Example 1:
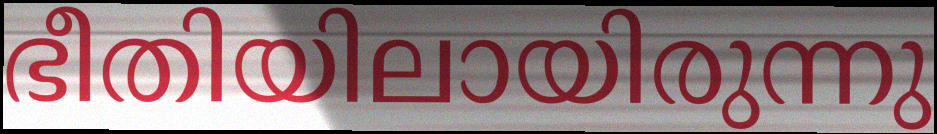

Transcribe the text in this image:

ഭീതിയിലായിരുന്നു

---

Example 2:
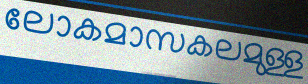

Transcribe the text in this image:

ലോകമാസകലമുള്ള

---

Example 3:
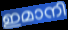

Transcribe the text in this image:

ഇമാനി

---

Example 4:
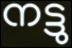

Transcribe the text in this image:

നട്ടു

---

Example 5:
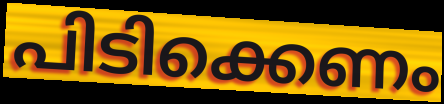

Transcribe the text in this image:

പിടിക്കെണം